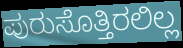
ಪುರುಸೊತ್ತಿರಲಿಲ್ಲ